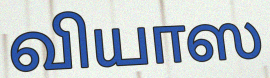
வியாஸ